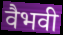
वैभवी